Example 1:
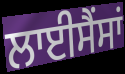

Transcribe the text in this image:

ਲਾਈਸੈਂਸਾਂ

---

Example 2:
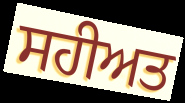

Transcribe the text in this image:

ਸਹੀਅਤ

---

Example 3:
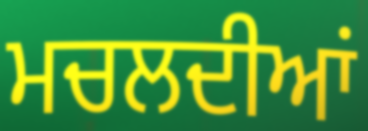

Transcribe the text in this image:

ਮਚਲਦੀਆਂ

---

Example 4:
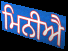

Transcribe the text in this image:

ਮਿਨੀਐ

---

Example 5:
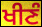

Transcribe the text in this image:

ਖੀਣੰ